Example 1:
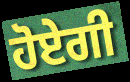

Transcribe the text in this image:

ਹੋਏਗੀ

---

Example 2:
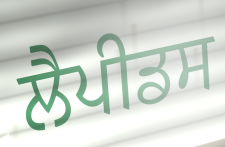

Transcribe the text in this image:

ਲੈਪੀਡਸ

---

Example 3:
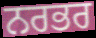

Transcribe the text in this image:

ਨਰਭਰ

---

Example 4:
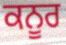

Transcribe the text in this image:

ਕਨੂਰ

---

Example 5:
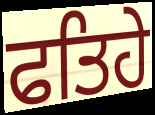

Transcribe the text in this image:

ਫਤਿਹੇ